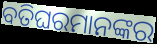
ବତିଘରମାନଙ୍କର